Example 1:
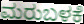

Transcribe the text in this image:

ಮರುಬಳಕೆ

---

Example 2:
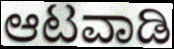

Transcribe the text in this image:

ಆಟವಾಡಿ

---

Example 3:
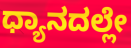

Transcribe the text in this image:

ಧ್ಯಾನದಲ್ಲೇ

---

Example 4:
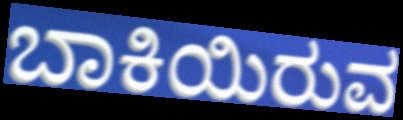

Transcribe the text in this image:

ಬಾಕಿಯಿರುವ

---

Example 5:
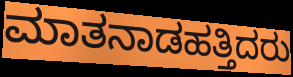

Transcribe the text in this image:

ಮಾತನಾಡಹತ್ತಿದರು